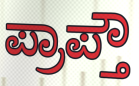
ಪ್ರಾಪ್ತೌ